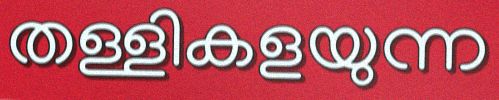
തള്ളികളയുന്ന